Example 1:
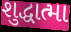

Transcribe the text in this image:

શુદ્ધાત્મા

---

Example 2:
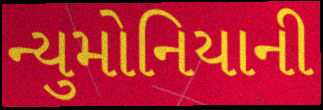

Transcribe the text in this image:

ન્યુમોનિયાની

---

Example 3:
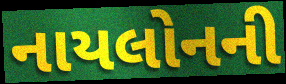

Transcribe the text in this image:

નાયલોનની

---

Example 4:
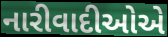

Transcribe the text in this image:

નારીવાદીઓએ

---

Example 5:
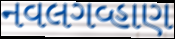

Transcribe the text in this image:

નવલગવ્હાણ